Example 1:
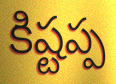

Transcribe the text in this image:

కిష్టప్ప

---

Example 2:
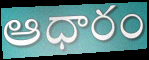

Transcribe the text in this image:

ఆధారం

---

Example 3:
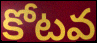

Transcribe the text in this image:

కోటవ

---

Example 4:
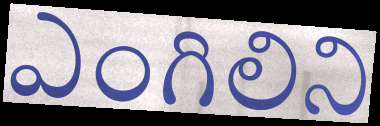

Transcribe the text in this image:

ఎంగిలిని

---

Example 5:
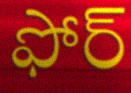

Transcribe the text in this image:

ఫోర్